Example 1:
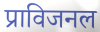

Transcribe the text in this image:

प्राविजनल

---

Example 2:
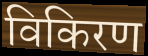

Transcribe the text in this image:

विकिरण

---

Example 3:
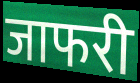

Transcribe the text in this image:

जाफरी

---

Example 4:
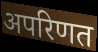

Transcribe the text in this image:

अपरिणत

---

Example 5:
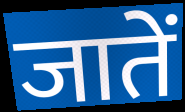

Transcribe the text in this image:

जातें